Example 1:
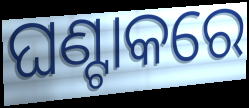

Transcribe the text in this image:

ଘଣ୍ଟାକରେ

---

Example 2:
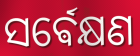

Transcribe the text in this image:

ସର୍ଵେକ୍ଷଣ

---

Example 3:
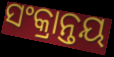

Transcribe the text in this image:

ସଂକ୍ରାନ୍ତୟ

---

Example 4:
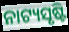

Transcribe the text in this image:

ନାଟ୍ୟସୃଷ୍ଟି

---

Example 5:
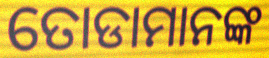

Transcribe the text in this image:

ତୋଡାମାନଙ୍କ